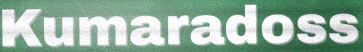
Kumaradoss